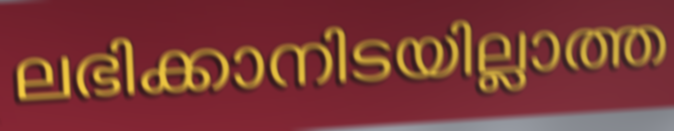
ലഭിക്കാനിടയില്ലാത്ത